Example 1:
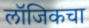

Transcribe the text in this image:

लॉजिकचा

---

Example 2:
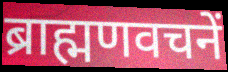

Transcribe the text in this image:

ब्राह्मणवचनें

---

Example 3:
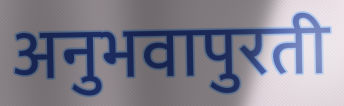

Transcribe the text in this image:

अनुभवापुरती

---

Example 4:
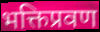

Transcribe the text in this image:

भक्तिप्रवण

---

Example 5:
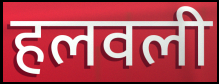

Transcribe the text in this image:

हलवली